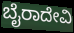
ಬೈರಾದೇವಿ